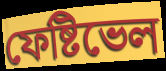
ফেষ্টিভেল